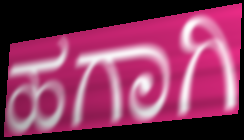
ಹಗಾಗಿ